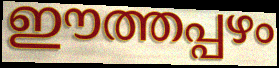
ഈത്തപ്പഴം